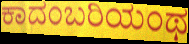
ಕಾದಂಬರಿಯಂಥ